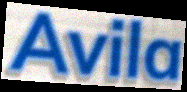
Avila